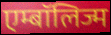
एम्बॉलिज्म